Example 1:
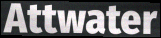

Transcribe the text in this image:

Attwater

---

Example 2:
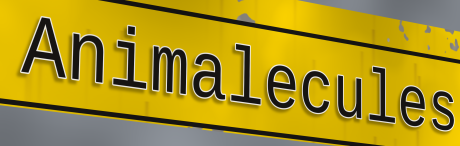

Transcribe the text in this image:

Animalecules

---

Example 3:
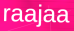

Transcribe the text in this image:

raajaa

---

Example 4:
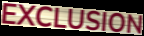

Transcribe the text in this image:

EXCLUSION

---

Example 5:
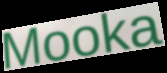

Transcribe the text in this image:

Mooka